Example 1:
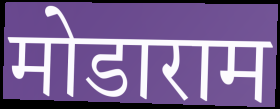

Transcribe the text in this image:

मोडाराम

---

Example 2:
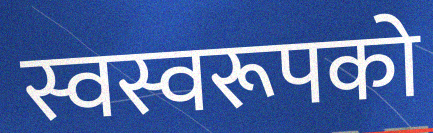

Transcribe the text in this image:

स्वस्वरूपको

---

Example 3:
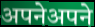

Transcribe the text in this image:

अपनेअपने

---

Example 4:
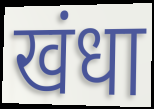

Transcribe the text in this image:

खंधा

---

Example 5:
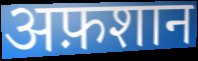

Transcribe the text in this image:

अफ़शान